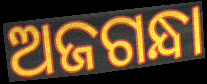
ଅଜଗନ୍ଧା